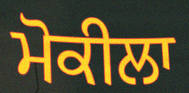
ਮੋਕੀਲਾ